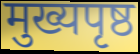
मुख्यपृष्ठ